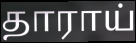
தாராய்